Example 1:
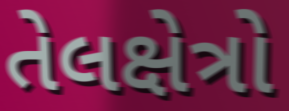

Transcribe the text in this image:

તેલક્ષેત્રો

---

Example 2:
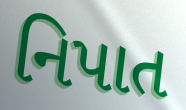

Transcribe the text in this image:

નિપાત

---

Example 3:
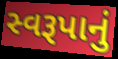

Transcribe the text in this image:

સ્વરૂપાનું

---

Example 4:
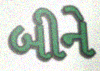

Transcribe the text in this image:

બીને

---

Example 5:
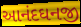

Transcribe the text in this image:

આનંદઘનજી